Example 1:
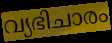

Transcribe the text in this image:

വ്യഭിചാരം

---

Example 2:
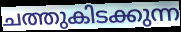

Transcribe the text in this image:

ചത്തുകിടക്കുന്ന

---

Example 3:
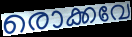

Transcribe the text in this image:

രൊക്കവേ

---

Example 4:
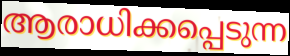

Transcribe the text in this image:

ആരാധിക്കപ്പെടുന്ന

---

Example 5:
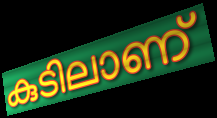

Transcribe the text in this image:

കുടിലാണ്